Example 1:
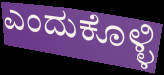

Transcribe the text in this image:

ಎಂದುಕೊಳ್ಳಿ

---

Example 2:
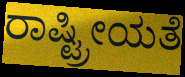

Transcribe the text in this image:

ರಾಷ್ಟ್ರೀಯತೆ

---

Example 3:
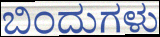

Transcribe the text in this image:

ಬಿಂದುಗಳು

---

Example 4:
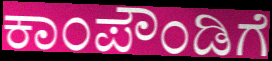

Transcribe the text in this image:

ಕಾಂಪೌಂಡಿಗೆ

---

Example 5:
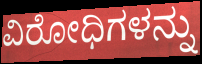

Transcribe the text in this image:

ವಿರೋಧಿಗಳನ್ನು